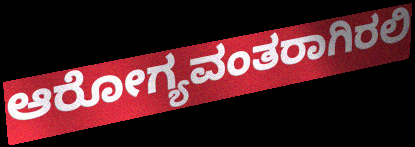
ಆರೋಗ್ಯವಂತರಾಗಿರಲಿ